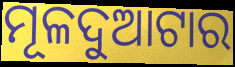
ମୂଳଦୁଆଟାର